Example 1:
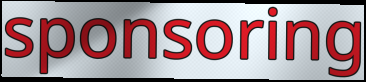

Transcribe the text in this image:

sponsoring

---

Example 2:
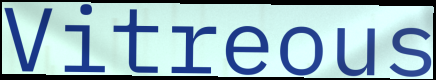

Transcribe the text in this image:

Vitreous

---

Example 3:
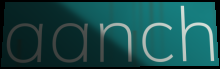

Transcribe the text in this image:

aanch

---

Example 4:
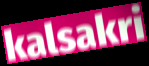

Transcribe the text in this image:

kalsakri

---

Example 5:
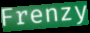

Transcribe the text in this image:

Frenzy